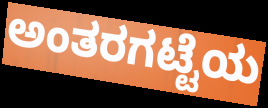
ಅಂತರಗಟ್ಟೆಯ